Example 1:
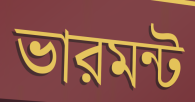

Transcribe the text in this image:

ভারমন্ট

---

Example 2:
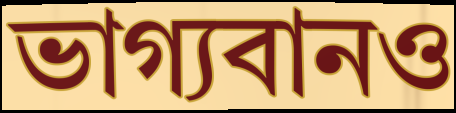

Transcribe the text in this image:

ভাগ্যবানও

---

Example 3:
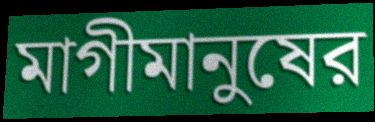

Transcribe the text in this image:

মাগীমানুষের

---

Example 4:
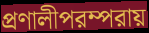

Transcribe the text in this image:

প্রণালীপরম্পরায়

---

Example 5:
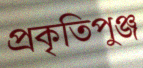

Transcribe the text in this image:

প্রকৃতিপুঞ্জ